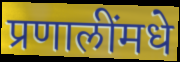
प्रणालींमधे